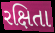
રક્ષિતા